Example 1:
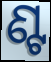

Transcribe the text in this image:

ଣ୍ଟ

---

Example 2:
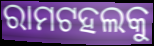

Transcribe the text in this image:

ରାମଟହଲକୁ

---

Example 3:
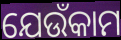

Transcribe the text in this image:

ଯେଉଁକାମ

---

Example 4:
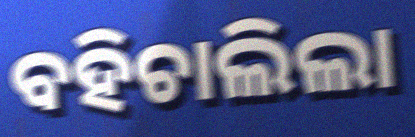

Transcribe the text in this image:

ବହିଚାଲିଲା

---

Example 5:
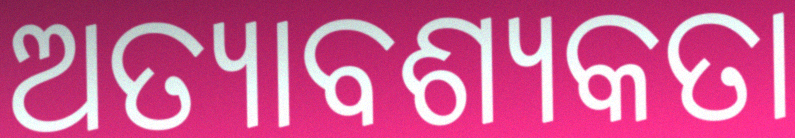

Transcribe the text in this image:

ଅତ୍ୟାବଶ୍ୟକତା